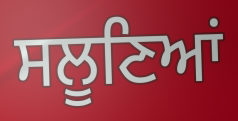
ਸਲੂਣਿਆਂ